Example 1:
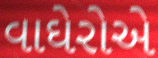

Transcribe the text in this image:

વાઘેરોએ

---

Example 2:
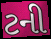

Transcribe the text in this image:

ટની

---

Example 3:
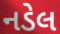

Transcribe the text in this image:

નડેલ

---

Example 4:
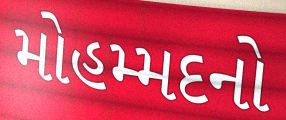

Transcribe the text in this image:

મોહમ્મદનો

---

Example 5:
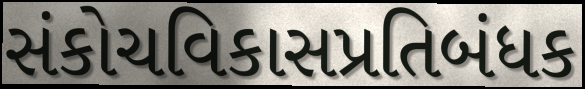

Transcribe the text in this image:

સંકોચવિકાસપ્રતિબંધક